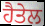
ਹੈਤੇਲ